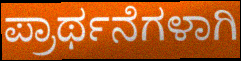
ಪ್ರಾರ್ಥನೆಗಳಾಗಿ